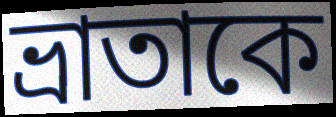
ভ্রাতাকে